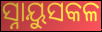
ସ୍ନାୟୁସକଳ